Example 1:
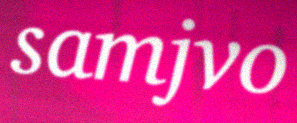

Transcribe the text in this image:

samjvo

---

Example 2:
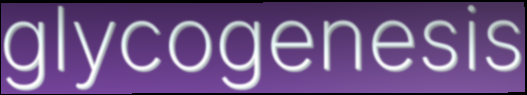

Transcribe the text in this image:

glycogenesis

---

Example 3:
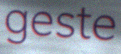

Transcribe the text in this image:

geste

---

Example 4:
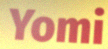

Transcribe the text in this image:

Yomi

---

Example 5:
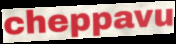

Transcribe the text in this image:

cheppavu